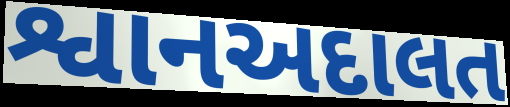
શ્વાનઅદાલત